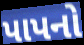
પાપનો